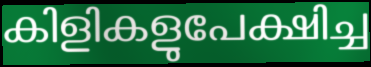
കിളികളുപേക്ഷിച്ച